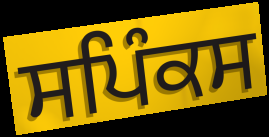
ਸਪਿੰਕਸ